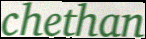
chethan